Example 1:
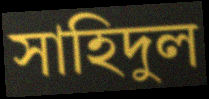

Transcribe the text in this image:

সাহিদুল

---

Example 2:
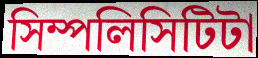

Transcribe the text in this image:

সিম্পলিসিটিটা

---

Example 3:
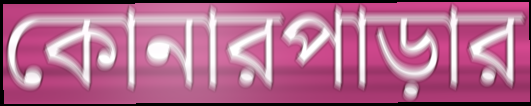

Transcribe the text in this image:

কোনারপাড়ার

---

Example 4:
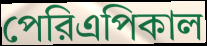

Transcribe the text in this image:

পেরিএপিকাল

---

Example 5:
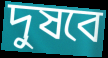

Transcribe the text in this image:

দুষবে